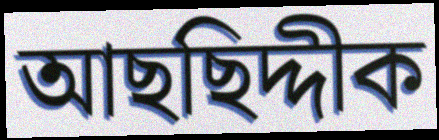
আছছিদ্দীক